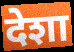
देशा